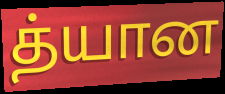
த்யான